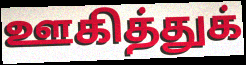
ஊகித்துக்